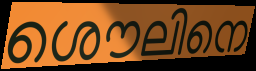
ശൌലിനെ